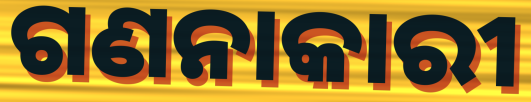
ଗଣନାକାରୀ